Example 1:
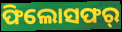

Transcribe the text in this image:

ଫିଲୋସଫର୍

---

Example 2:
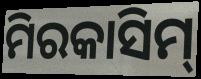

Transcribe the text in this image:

ମିରକାସିମ୍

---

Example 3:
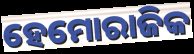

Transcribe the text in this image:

ହେମୋରାଜିକ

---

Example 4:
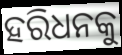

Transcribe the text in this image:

ହରିଧନକୁ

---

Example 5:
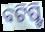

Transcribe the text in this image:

ବଟିଷ୍ଟି